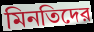
মিনতিদের